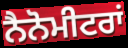
ਨੈਨੋਮੀਟਰਾਂ